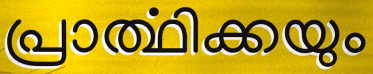
പ്രാൎത്ഥിക്കയും